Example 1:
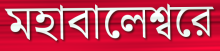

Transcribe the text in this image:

মহাবালেশ্বরে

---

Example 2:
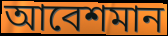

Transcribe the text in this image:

আবেশমান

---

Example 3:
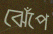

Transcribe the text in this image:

ঝেঁপে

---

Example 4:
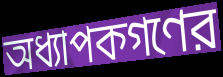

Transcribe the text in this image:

অধ্যাপকগণের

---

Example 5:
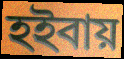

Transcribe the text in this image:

হইবায়